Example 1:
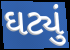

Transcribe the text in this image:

ઘટ્યું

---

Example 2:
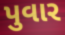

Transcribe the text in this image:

પુવાર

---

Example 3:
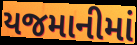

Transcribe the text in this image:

યજમાનીમાં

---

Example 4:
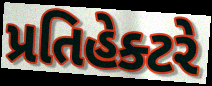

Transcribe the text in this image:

પ્રતિહેક્ટરે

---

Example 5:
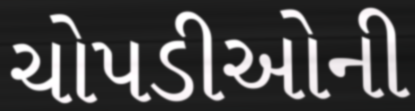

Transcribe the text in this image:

ચોપડીઓની